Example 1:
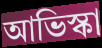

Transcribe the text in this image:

আভিস্কা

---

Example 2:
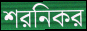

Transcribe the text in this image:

শরনিকর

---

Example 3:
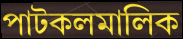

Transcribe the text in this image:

পাটকলমালিক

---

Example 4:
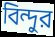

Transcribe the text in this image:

বিন্দুর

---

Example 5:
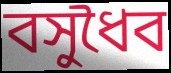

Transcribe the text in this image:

বসুধৈব